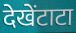
देखेंटाटा